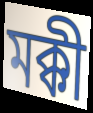
মক্কী